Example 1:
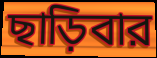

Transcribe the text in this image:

ছাড়িবার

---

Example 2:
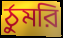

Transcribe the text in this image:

ঠুমরি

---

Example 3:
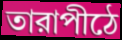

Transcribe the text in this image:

তারাপীঠে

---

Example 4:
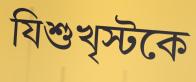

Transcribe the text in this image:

যিশুখৃস্টকে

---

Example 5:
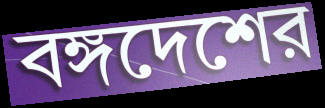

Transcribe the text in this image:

বঙ্গদেশের